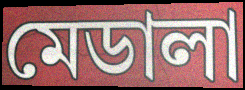
মেডালা